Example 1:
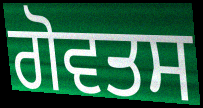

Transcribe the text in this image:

ਗੋਵਤਸ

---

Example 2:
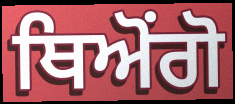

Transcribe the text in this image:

ਥਿਅੋਂਗੋ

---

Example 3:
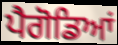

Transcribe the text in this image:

ਪੈਗੋਡਿਆਂ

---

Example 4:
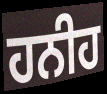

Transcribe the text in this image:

ਹਨੀਹ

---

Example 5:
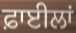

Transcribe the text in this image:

ਫ਼ਾਈਲਾਂ